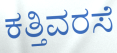
ಕತ್ತಿವರಸೆ